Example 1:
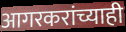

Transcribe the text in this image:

आगरकरांच्याही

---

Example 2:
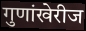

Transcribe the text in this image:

गुणांखेरीज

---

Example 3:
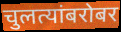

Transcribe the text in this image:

चुलत्यांबरोबर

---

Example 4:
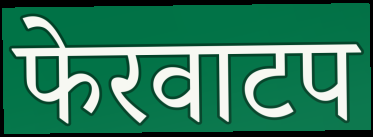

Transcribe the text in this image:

फेरवाटप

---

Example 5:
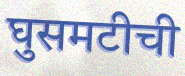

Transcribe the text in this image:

घुसमटीची